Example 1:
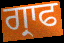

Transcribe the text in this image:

ਗ੍ਰਾਫ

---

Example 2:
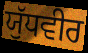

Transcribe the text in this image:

ਯੁੱਧਵੀਰ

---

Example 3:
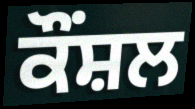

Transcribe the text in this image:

ਕੌਂਸ਼ਲ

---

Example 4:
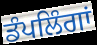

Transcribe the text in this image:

ਡੰਪਲਿੰਗਾਂ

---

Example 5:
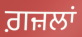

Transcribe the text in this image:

ਗ਼ਜ਼ਲਾਂ